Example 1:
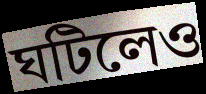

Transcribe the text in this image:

ঘটিলেও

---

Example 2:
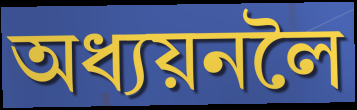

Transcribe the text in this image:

অধ্যয়নলৈ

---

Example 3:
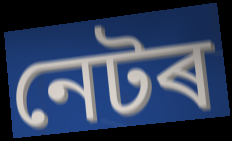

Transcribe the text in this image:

নেটৰ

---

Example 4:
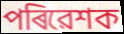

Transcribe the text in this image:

পৰিৱেশক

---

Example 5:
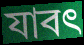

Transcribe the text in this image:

যাবৎ